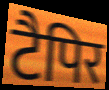
टैपिर